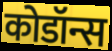
कोडॉन्स